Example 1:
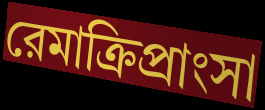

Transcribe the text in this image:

রেমাক্রিপ্রাংসা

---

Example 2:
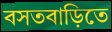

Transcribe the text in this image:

বসতবাড়িতে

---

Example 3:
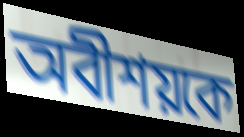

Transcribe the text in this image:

অবীশয়কে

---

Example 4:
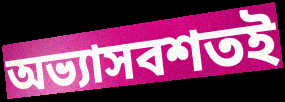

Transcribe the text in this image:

অভ্যাসবশতই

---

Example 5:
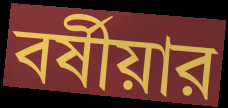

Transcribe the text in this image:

বর্ষীয়ার